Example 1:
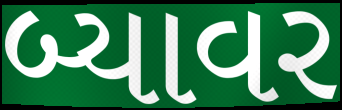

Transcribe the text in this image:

બ્યાવર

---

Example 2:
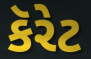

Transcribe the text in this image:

કૅરેટ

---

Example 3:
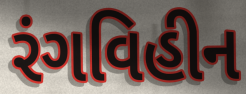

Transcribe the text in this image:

રંગવિહીન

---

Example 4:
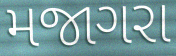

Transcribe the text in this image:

મજાગરા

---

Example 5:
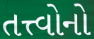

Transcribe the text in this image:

તત્ત્વોનો